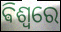
ଵିଶ୍ଵରେ